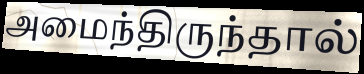
அமைந்திருந்தால்